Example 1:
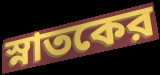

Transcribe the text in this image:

স্নাতকের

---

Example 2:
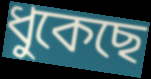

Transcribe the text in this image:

ধুকেছে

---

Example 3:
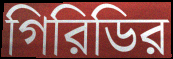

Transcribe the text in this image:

গিরিডির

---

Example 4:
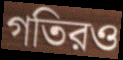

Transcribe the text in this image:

গতিরও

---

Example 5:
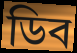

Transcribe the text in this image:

ডিব